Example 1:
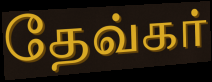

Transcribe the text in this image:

தேவ்கர்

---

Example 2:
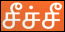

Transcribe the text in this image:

சீச்சீ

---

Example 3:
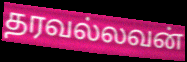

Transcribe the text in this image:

தரவல்லவன்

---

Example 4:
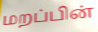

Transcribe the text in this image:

மறப்பின்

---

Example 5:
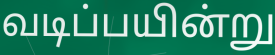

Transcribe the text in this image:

வடிப்பயின்று